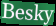
Besky